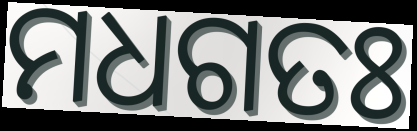
ମଧଗତଃ